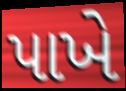
પાખે